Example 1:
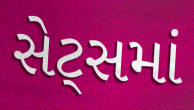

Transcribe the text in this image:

સેટ્સમાં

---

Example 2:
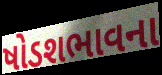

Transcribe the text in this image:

ષોડશભાવના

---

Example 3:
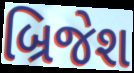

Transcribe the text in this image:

બ્રિજેશ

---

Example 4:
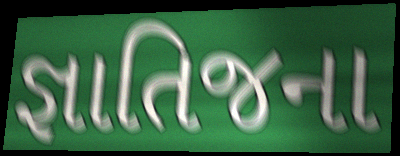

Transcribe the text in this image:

જ્ઞાતિજના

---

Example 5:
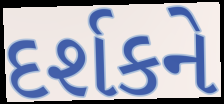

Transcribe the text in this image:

દર્શકને